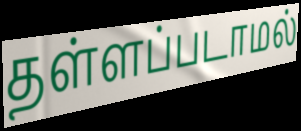
தள்ளப்படாமல்